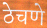
ठेचणे